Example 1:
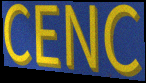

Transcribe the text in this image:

CENC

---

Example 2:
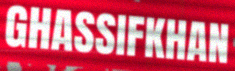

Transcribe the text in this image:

GHASSIFKHAN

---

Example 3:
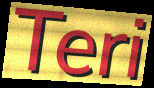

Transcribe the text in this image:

Teri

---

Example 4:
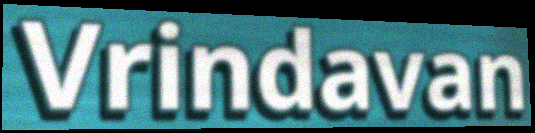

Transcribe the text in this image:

Vrindavan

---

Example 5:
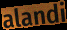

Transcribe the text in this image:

alandi